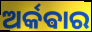
ଅର୍କଵାର